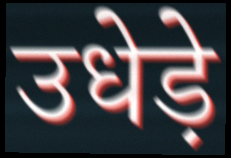
उधेड़े